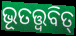
ଭୂତତ୍ତ୍ୱବିତ୍